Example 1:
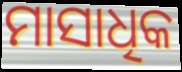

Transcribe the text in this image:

ମାସାଧିକ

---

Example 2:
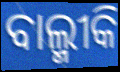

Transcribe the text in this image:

ବାଲ୍ମୀକି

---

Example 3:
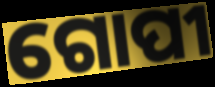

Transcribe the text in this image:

ଗୋପୀ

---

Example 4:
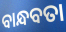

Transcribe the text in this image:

ବାନ୍ଧବତା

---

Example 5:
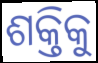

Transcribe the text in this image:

ଶକ୍ତିକୁ